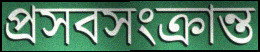
প্রসবসংক্রান্ত